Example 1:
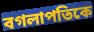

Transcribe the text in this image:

বগলাপতিকে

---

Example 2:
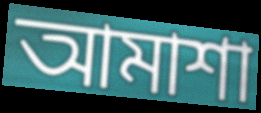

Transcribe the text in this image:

আমাশা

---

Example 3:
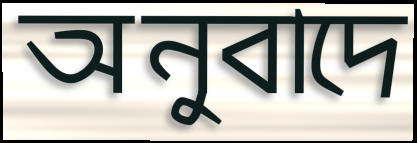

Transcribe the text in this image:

অনুবাদে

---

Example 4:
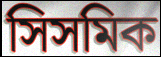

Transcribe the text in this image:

সিসমিক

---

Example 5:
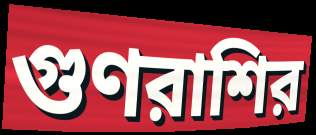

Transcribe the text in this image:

গুণরাশির